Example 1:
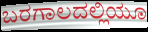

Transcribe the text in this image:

ಬರಗಾಲದಲ್ಲಿಯೂ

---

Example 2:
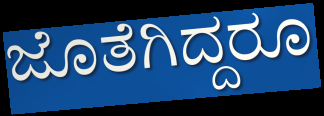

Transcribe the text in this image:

ಜೊತೆಗಿದ್ದರೂ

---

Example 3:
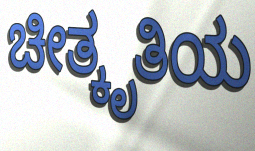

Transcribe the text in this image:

ಚೀತ್ಕೃತಿಯ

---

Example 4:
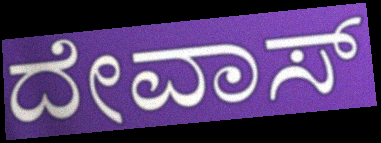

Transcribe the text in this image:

ದೇವಾಸ್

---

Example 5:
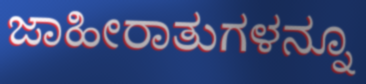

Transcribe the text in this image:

ಜಾಹೀರಾತುಗಳನ್ನೂ